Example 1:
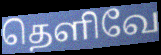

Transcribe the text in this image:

தெளிவே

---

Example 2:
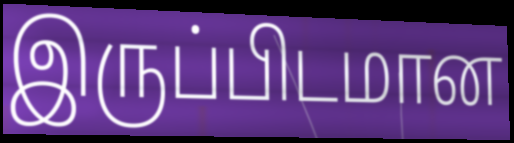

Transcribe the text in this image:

இருப்பிடமான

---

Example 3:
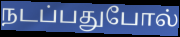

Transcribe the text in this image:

நடப்பதுபோல்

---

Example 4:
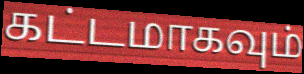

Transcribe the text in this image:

கட்டமாகவும்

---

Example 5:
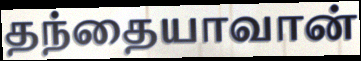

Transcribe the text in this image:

தந்தையாவான்